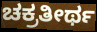
ಚಕ್ರತೀರ್ಥ